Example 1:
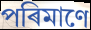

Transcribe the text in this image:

পৰিমাণে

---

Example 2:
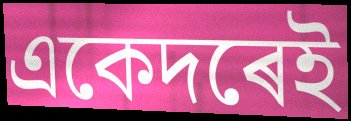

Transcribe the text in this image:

একেদৰেই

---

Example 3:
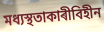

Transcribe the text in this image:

মধ্যস্থতাকাৰীবিহীন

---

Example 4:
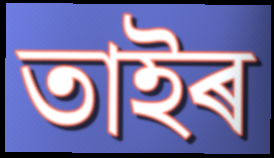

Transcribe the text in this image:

তাইৰ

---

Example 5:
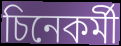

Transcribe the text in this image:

চিনেকৰ্মী